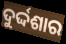
ଦୁର୍ଦ୍ଦଶାର